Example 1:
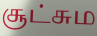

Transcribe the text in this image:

சூட்சும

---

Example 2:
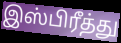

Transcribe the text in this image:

இஸ்பிரீத்து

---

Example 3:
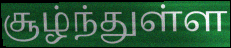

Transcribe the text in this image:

சூழ்ந்துள்ள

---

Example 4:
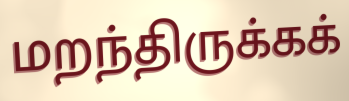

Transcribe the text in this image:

மறந்திருக்கக்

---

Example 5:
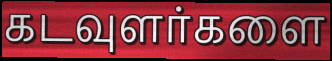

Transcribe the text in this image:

கடவுளர்களை